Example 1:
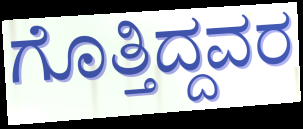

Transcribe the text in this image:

ಗೊತ್ತಿದ್ದವರ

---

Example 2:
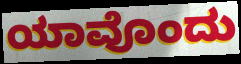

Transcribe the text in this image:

ಯಾವೊಂದು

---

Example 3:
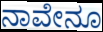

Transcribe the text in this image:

ನಾವೇನೂ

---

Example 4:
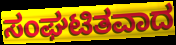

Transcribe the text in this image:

ಸಂಘಟಿತವಾದ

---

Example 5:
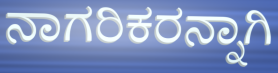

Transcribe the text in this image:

ನಾಗರಿಕರನ್ನಾಗಿ